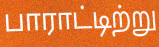
பாராட்டிற்று